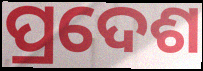
ପ୍ରଦେଶ